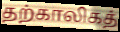
தற்காலிகத்